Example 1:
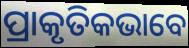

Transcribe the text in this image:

ପ୍ରାକୃତିକଭାବେ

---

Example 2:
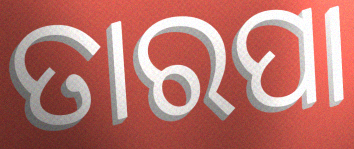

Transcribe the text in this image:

ତାରପା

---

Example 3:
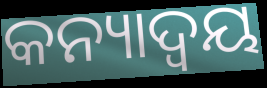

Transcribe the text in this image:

କନ୍ୟାଦ୍ୱୟ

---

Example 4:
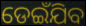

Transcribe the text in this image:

ଡେଇଁଯିବ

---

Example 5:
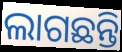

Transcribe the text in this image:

ଲାଗଛନ୍ତି